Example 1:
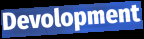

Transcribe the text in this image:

Devolopment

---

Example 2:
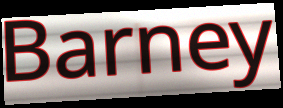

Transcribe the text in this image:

Barney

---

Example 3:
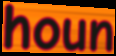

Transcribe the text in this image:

houn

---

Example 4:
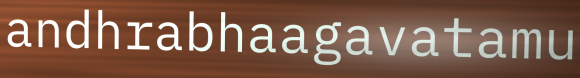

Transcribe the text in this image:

andhrabhaagavatamu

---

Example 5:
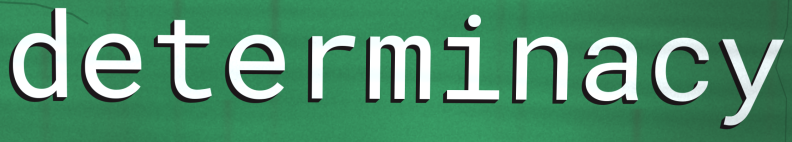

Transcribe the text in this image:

determinacy